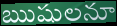
ఋషులనూ